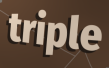
triple